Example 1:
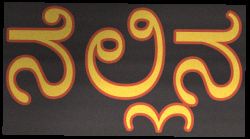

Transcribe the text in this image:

ನೆಲ್ಲಿನ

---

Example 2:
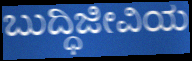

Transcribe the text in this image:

ಬುದ್ಧಿಜೀವಿಯ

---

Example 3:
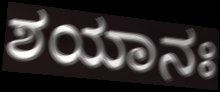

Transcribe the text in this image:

ಶಯಾನಃ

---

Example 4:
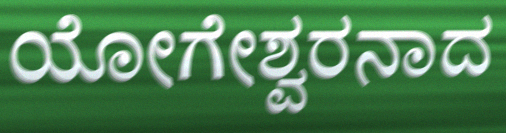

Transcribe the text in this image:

ಯೋಗೇಶ್ವರನಾದ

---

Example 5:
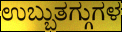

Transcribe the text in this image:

ಉಬ್ಬುತಗ್ಗುಗಳ